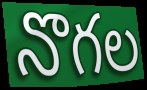
నొగల